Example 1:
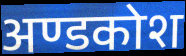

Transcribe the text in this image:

अण्डकोश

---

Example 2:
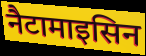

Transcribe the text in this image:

नैटामाइसिन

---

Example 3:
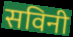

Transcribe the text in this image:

सविनी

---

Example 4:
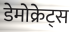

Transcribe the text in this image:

डेमोक्रेट्स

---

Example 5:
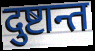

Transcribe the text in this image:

दुष्टान्त